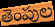
తెంపుల